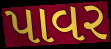
પાવર